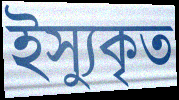
ইস্যুকৃত